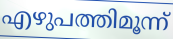
എഴുപത്തിമൂന്ന്